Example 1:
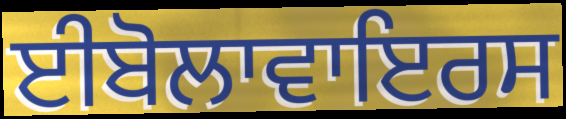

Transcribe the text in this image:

ਈਬੋਲਾਵਾਇਰਸ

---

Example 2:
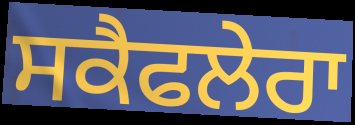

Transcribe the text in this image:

ਸਕੈਫਲੇਰਾ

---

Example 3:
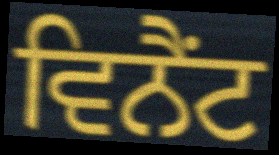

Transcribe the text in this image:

ਵਿਨੈਂਟ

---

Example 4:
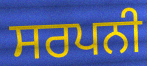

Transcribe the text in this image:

ਸਰਪਨੀ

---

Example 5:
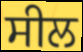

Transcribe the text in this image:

ਸੀਲ